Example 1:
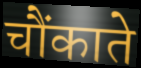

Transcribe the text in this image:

चौंकाते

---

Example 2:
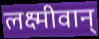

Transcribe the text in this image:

लक्ष्मीवान्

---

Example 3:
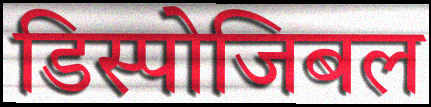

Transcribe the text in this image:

डिस्पोजिबल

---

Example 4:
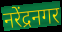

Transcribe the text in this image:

नरेंद्रनगर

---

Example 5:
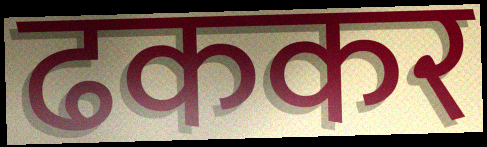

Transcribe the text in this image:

ढककर